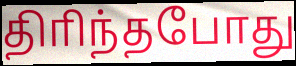
திரிந்தபோது